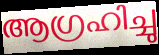
ആഗ്രഹിച്ചു